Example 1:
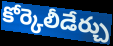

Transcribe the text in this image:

కోర్కెలీడేర్చు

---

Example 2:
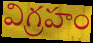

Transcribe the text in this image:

విగ్రహం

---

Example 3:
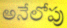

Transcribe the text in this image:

అనేలోపు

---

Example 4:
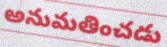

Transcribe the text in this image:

అనుమతించడు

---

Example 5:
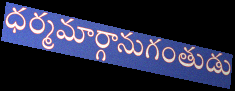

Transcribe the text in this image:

ధర్మమార్గానుగంతుడు